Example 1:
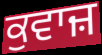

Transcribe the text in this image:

ਕੁਵਾਜ਼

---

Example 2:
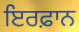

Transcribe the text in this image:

ਇਰਫ਼ਾਨ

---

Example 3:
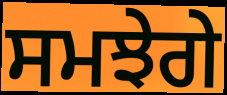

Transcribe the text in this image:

ਸਮਝੇਗੇ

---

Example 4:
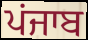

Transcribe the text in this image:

ਪਂਜਾਬ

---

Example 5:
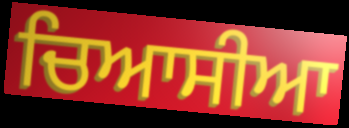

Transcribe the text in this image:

ਚਿਆਸੀਆ